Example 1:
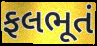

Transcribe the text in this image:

ફલભૂતં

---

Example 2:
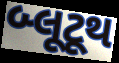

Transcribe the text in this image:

બ્લૂટૂથ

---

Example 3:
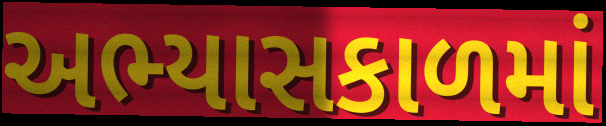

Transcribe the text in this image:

અભ્યાસકાળમાં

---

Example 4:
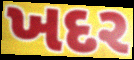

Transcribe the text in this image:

ખદર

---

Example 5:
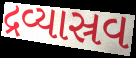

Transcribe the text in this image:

દ્રવ્યાસ્રવ